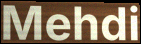
Mehdi